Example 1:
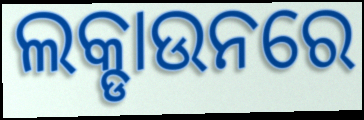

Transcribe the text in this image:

ଲକ୍ଡାଉନରେ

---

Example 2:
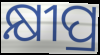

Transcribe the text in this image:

କ୍ଷୀପ୍ର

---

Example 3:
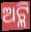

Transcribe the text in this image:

ଅଟ୍ଲି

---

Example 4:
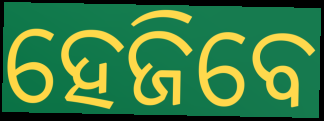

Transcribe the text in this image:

ହେଜିବେ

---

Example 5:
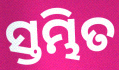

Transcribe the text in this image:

ସ୍ତମ୍ଭିତ